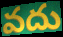
వదు